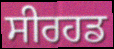
ਸੀਰਹਡ